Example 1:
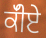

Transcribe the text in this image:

ਕੱੀਏ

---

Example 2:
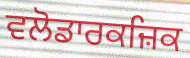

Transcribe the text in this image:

ਵਲੋਡਾਰਕਜ਼ਿਕ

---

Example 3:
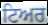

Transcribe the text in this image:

ਟਿਅਰ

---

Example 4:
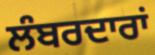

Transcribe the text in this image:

ਲੰਬਰਦਾਰਾਂ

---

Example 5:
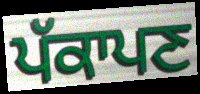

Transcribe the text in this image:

ਪੱਕਾਪਣ